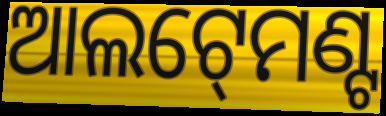
ଆଲଟ୍‍ମେଣ୍ଟ